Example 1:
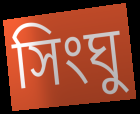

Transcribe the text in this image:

সিংঘু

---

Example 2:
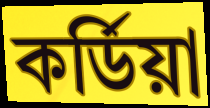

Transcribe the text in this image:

কর্ডিয়া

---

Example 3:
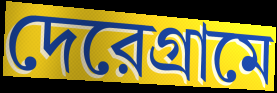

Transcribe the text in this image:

দেরেগ্রামে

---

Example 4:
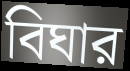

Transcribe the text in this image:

বিঘার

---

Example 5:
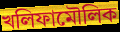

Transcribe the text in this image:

খলিফামৌলিক